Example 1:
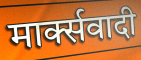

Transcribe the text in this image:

मार्क्‍सवादी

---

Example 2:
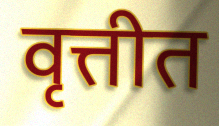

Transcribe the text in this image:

वृत्तीत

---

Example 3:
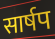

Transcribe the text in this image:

सार्षप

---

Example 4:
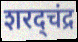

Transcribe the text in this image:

शरद्चंद्र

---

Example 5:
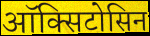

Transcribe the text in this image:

ऑक्सिटोसिन